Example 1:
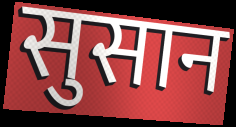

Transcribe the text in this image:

सुसान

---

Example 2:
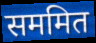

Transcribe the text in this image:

सममित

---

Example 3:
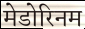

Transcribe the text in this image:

मेडोरिनम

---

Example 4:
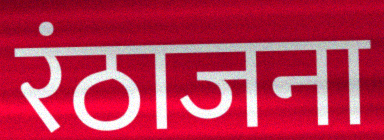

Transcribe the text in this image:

रंठाजना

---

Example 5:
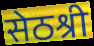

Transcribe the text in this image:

सेठश्री